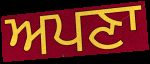
ਅਪਣਾ